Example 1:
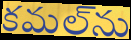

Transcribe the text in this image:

కమల్‌ను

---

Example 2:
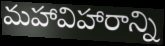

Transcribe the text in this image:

మహావిహారాన్ని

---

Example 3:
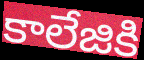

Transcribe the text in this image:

కాలేజికి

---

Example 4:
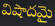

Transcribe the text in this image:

విషాదమై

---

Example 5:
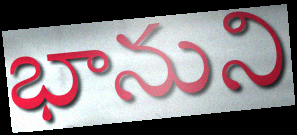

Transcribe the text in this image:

భానుని